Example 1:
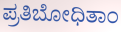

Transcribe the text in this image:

ಪ್ರತಿಬೋಧಿತಾಂ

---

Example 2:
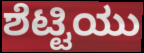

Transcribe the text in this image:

ಶೆಟ್ಟಿಯು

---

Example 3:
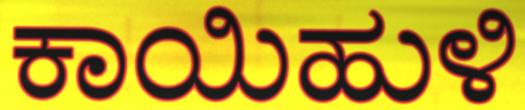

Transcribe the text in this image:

ಕಾಯಿಹುಳಿ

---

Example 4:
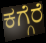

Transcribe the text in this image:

ಕಗ್ಗೆರೆ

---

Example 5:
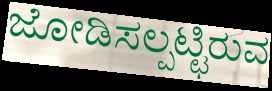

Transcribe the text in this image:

ಜೋಡಿಸಲ್ಪಟ್ಟಿರುವ